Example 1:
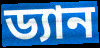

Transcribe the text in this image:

ড্যান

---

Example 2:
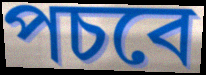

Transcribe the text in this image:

পচবে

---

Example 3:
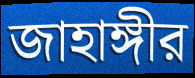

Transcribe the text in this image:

জাহাঙ্গীর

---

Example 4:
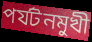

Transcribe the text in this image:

পর্যটনমুখী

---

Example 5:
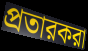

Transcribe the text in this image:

প্রতারকরা